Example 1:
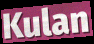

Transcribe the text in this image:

Kulan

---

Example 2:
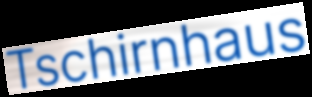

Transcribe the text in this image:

Tschirnhaus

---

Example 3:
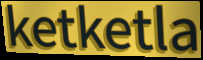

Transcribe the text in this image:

ketketla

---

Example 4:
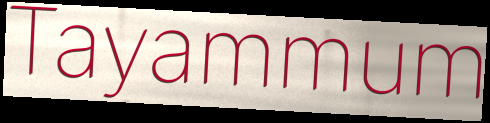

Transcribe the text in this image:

Tayammum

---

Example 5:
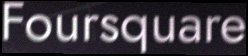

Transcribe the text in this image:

Foursquare